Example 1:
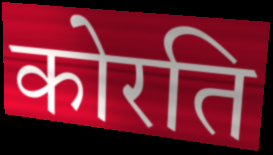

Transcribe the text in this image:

कोरति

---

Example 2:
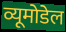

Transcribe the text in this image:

व्यूमोडेल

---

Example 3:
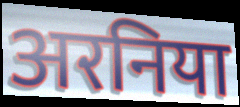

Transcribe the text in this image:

अरनिया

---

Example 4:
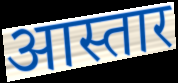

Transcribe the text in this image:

आस्तार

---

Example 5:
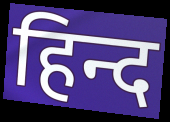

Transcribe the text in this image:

हिन्द